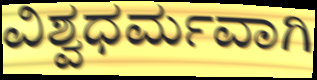
ವಿಶ್ವಧರ್ಮವಾಗಿ